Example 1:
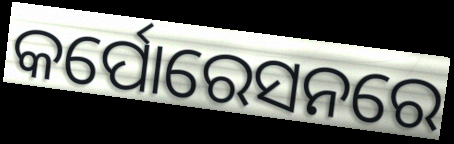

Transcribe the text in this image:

କର୍ପୋରେସନରେ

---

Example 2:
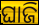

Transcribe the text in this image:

ଘାଜି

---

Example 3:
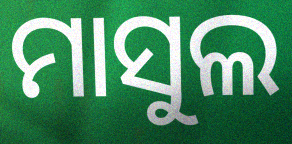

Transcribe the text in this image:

ମାସୁଲ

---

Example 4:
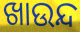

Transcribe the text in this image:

ଖାଉନ୍ଦ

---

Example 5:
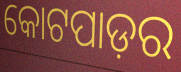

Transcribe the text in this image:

କୋଟପାଡ଼ର